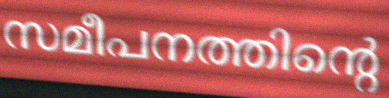
സമീപനത്തിന്റെ